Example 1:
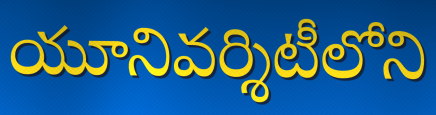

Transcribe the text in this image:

యూనివర్శిటీలోని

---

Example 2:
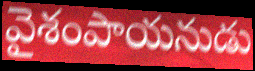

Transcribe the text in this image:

వైశంపాయనుడు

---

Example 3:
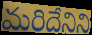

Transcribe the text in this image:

మరిదేనిని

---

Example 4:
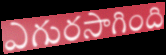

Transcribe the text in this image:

ఎగురసాగింది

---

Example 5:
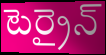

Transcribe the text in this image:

టెర్రైన్